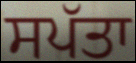
ਸਪੱਤਾ